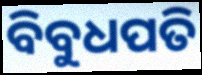
ବିବୁଧପତି